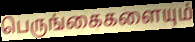
பெருங்கைகளையும்